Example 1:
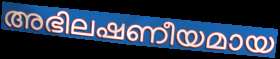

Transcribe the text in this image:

അഭിലഷണീയമായ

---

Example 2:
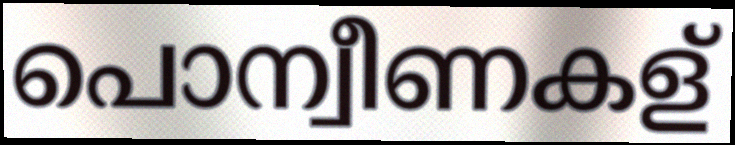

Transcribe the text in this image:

പൊന്വീണകള്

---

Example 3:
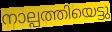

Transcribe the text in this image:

നാല്പത്തിയെട്ടു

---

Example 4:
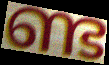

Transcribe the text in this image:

ണ്ട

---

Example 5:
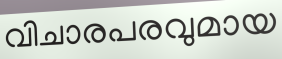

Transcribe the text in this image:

വിചാരപരവുമായ